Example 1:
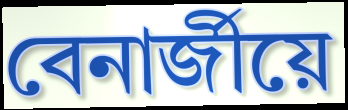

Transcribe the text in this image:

বেনাৰ্জীয়ে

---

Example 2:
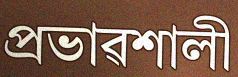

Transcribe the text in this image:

প্ৰভাৱশালী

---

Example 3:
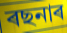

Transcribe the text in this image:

ৰছনাৰ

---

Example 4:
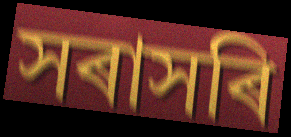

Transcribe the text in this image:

সৰাসৰি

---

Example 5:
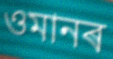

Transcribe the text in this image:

ওমানৰ